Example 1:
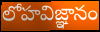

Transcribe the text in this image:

లోహవిజ్ఞానం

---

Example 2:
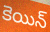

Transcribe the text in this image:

కెయిన్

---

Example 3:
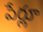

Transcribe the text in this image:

పేర్లూ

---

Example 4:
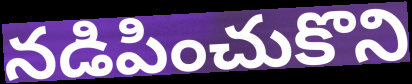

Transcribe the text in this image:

నడిపించుకొని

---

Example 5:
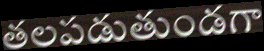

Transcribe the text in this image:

తలపడుతుండగా